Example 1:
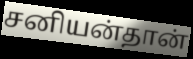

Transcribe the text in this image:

சனியன்தான்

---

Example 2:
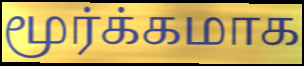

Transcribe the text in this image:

மூர்க்கமாக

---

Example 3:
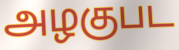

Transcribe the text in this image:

அழகுபட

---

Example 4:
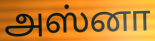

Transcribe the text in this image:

அஸ்னா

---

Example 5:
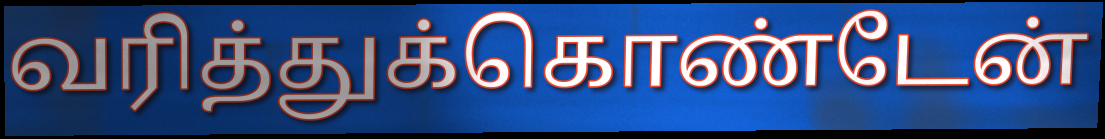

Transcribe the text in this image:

வரித்துக்கொண்டேன்